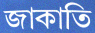
জাকাতি